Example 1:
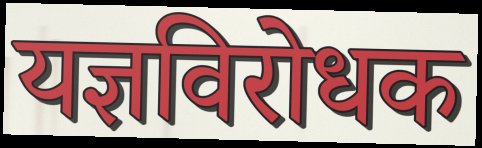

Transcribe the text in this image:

यज्ञविरोधक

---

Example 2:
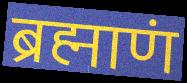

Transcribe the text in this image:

ब्रह्माणं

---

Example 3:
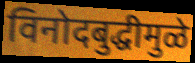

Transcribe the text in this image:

विनोदबुद्धीमुळे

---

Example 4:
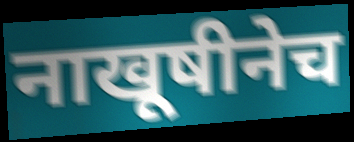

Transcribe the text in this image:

नाखूषीनेच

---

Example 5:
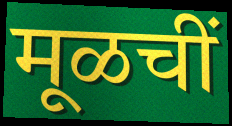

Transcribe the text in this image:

मूळचीं